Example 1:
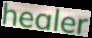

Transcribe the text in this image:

healer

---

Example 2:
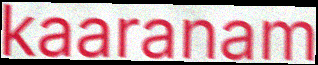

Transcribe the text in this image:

kaaranam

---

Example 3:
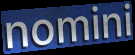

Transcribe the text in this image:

nomini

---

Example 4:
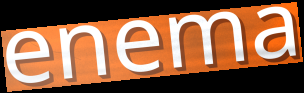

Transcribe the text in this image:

enema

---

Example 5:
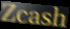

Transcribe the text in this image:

Zcash